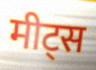
मीट्स